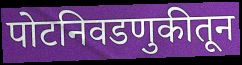
पोटनिवडणुकीतून